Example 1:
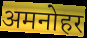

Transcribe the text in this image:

अमनोहर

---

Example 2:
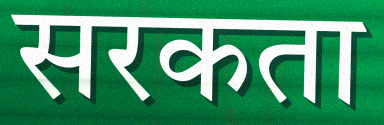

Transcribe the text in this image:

सरकता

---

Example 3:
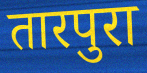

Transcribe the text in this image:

तारपुरा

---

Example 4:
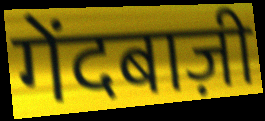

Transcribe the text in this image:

गेंदबाज़ी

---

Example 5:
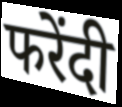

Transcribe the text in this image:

फरेंदी